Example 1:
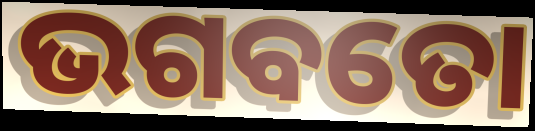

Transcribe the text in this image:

ଭଗବତୋ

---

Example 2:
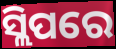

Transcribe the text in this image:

ସ୍ଲିପରେ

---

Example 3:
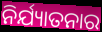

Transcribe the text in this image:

ନିର୍ଯ୍ୟାତନାର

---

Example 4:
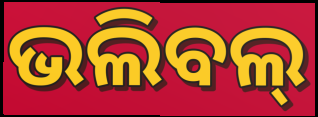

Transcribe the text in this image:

ଭଲିବଲ୍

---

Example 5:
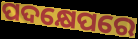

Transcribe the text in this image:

ପଦକ୍ଷେପରେ